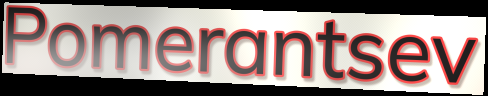
Pomerantsev